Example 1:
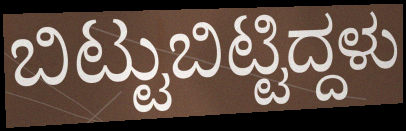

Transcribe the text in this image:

ಬಿಟ್ಟುಬಿಟ್ಟಿದ್ದಳು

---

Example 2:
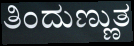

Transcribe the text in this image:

ತಿಂದುಣ್ಣುತ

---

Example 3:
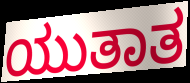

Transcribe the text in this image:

ಯುತಾತ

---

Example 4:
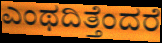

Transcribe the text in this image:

ಎಂಥದಿತ್ತೆಂದರೆ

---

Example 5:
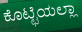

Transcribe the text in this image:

ಕೊಟ್ಟೆಯಲ್ಲಾ